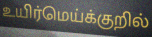
உயிர்மெய்க்குறில்